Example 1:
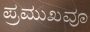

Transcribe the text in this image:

ಪ್ರಮುಖವೂ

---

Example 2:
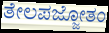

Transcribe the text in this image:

ತೇಲಪಜ್ಜೋತಂ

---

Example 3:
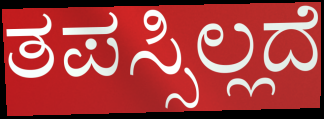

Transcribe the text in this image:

ತಪಸ್ಸಿಲ್ಲದೆ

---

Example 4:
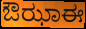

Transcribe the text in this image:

ಔಝಾಈ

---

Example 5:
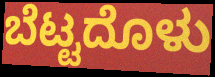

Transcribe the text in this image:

ಬೆಟ್ಟದೊಳು